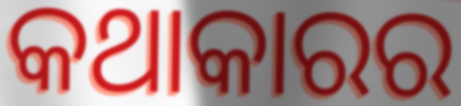
କଥାକାରର